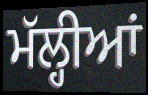
ਮੱਲ੍ਹੀਆਂ